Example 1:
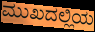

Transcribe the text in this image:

ಮುಖದಲ್ಲಿಯ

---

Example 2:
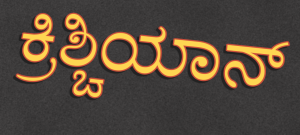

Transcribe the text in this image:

ಕ್ರಿಶ್ಚಿಯಾನ್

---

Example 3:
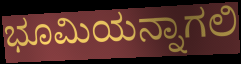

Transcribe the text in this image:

ಭೂಮಿಯನ್ನಾಗಲಿ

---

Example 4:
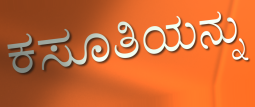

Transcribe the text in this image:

ಕಸೂತಿಯನ್ನು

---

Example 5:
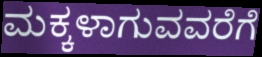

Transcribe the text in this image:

ಮಕ್ಕಳಾಗುವವರೆಗೆ